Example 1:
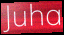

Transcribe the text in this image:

Juha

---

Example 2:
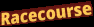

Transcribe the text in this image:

Racecourse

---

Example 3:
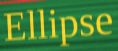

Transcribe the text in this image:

Ellipse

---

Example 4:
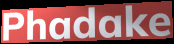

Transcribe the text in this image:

Phadake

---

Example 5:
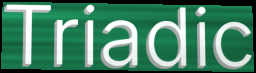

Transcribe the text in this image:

Triadic